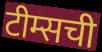
टीम्सची